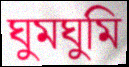
ঘুমঘুমি